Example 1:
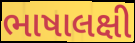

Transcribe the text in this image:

ભાષાલક્ષી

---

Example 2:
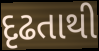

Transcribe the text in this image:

દૃઢતાથી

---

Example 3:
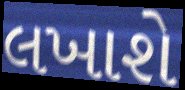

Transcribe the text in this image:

લખાશે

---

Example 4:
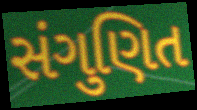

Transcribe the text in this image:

સંગુણિત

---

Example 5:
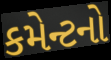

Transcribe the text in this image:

કમેન્ટનો